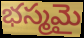
భస్మమై